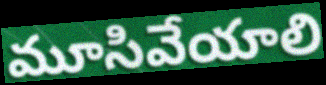
మూసివేయాలి